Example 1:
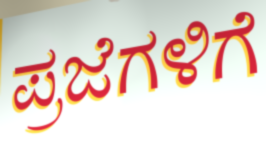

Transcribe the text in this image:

ಪ್ರಜೆಗಳಿಗೆ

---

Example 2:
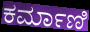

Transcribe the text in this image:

ಕರ್ಮಾಣಿ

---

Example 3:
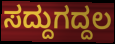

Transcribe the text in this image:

ಸದ್ದುಗದ್ದಲ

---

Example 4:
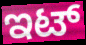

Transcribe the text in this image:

ಇಟ್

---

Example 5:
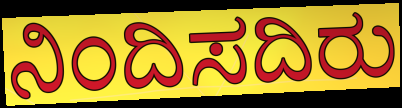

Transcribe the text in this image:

ನಿಂದಿಸದಿರು